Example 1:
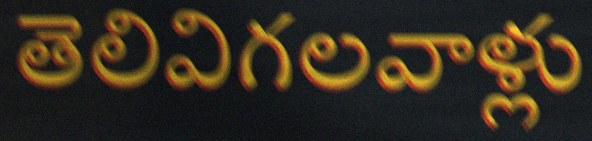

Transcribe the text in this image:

తెలివిగలవాళ్లు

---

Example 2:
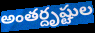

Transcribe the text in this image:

అంతర్దృష్టుల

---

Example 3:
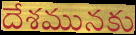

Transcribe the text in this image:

దేశమునకు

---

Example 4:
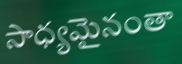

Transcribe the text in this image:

సాధ్యమైనంతా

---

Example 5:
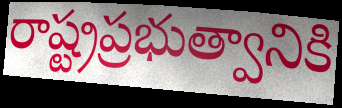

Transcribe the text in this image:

రాష్ట్రప్రభుత్వానికి